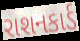
રાશનકાર્ડ